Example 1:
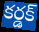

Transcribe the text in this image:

కర్డక్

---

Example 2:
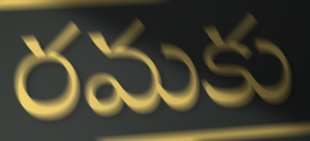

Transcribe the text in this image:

రమకు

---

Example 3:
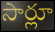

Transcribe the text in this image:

సార్లూ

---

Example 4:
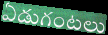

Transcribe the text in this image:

ఏడుగంటలు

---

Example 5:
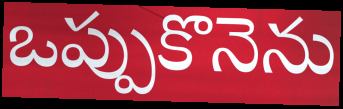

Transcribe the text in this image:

ఒప్పుకొనెను